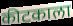
कीटकाला